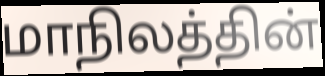
மாநிலத்தின்